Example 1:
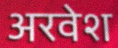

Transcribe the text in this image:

अरवेश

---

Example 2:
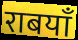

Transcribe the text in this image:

राबयाँ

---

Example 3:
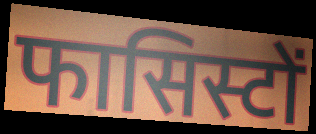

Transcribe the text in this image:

फासिस्टों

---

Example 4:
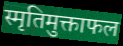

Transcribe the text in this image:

स्मृतिमुक्ताफल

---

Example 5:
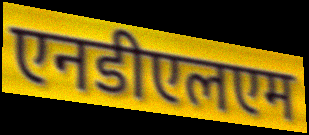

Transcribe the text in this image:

एनडीएलएम